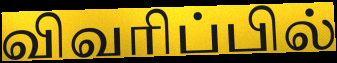
விவரிப்பில்